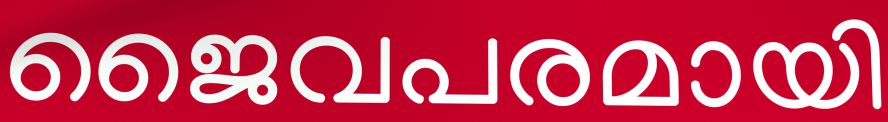
ജൈവപരമായി